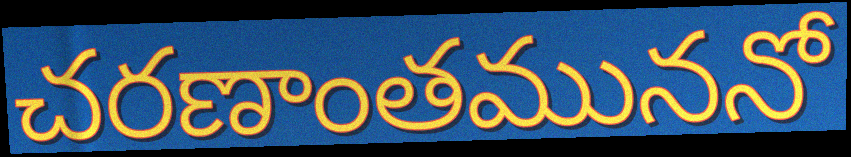
చరణాంతముననో